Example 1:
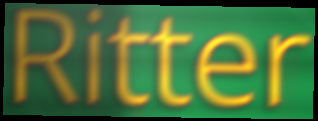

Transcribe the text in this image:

Ritter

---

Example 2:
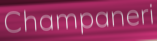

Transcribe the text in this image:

Champaneri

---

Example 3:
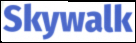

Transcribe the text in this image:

Skywalk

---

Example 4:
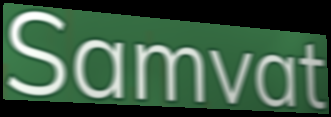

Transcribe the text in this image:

Samvat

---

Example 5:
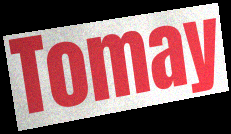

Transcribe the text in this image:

Tomay